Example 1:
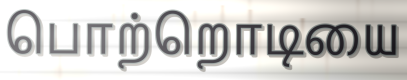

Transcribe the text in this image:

பொற்றொடியை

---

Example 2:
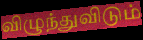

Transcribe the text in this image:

விழுந்துவிடும்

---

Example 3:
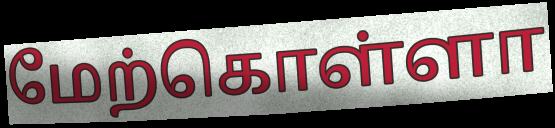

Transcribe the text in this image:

மேற்கொள்ளா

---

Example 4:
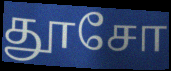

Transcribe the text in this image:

தூசோ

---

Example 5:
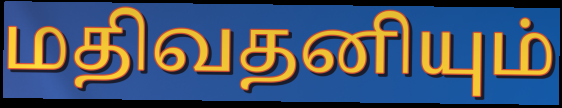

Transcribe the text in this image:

மதிவதனியும்